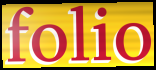
folio